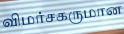
விமர்சகருமான